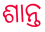
ଶାନ୍ତ